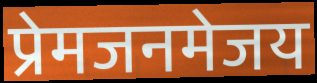
प्रेमजनमेजय